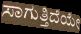
ಸಾಗುತ್ತಿದೆಯೇ